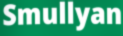
Smullyan